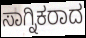
ಸಾಗ್ನಿಕರಾದ